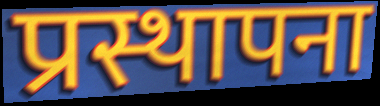
प्रस्थापना